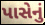
પાસેનું